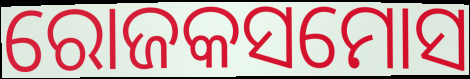
ରୋଜକସମୋସ